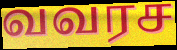
வவரச